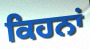
ਕਿਹਨਾਂ